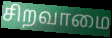
சிறவாமை